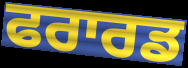
ਫਰਾਰਡ